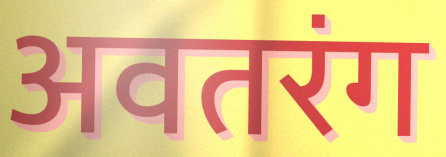
अवतरंग